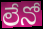
లేనో